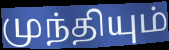
முந்தியும்